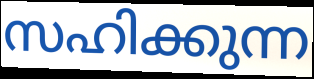
സഹിക്കുന്ന